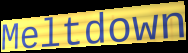
Meltdown